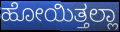
ಹೋಯಿತ್ತಲ್ಲಾ